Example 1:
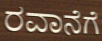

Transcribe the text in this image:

ರವಾನೆಗೆ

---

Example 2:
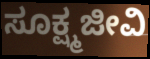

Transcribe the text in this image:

ಸೂಕ್ಷ್ಮಜೀವಿ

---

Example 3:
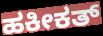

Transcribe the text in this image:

ಹಕೀಕತ್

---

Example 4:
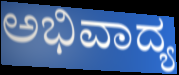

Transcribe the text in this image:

ಅಭಿವಾದ್ಯ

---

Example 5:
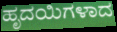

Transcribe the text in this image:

ಹೃದಯಿಗಳಾದ